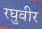
रघुवीर